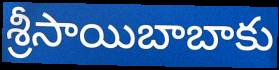
శ్రీసాయిబాబాకు